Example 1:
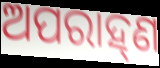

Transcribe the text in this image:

ଅପରାହ୍‍ଣ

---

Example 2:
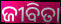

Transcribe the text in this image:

ଜୀବିତା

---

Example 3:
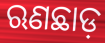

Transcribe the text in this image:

ଋଣଛାଡ଼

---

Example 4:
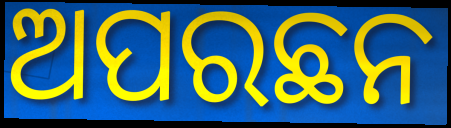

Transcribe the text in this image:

ଅପରଛନ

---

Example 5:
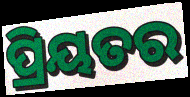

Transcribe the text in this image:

ପ୍ରିୟତର